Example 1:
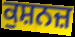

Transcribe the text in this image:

ਕੁਸ਼ਨਜ਼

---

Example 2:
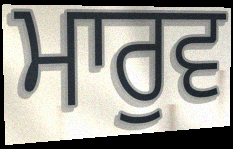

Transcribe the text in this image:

ਮਾਰੁਵ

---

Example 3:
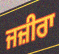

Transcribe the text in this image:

ਜਜ਼ੀਰਾ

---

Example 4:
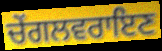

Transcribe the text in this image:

ਚੇਂਗਲਵਰਾਇਣ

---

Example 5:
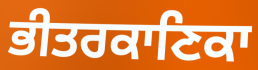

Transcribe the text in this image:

ਭੀਤਰਕਾਣਿਕਾ